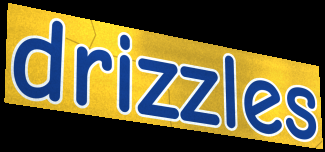
drizzles